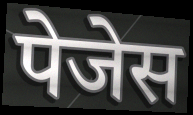
पेजेस